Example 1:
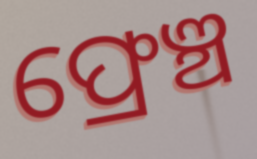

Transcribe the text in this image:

ଫ୍ରେଞ୍ଚ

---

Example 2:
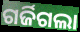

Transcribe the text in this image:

ଗର୍ଜିଗଲା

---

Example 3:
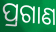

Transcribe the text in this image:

ପ୍ରଗାଣ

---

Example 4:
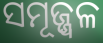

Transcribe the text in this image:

ସମୂଜ୍ଜ୍ୱଳ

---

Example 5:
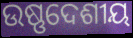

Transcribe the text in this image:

ଉଷ୍ଣଦେଶୀୟ